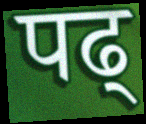
पढ्